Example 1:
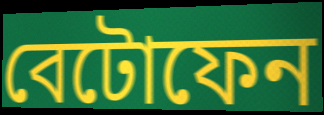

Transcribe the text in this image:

বেটোফেন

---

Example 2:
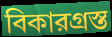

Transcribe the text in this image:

বিকারগ্রস্ত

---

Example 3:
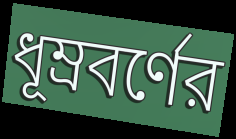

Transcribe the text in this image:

ধূম্রবর্ণের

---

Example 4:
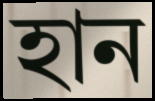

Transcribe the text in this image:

হান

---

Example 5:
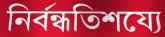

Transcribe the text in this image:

নির্বন্ধতিশয্যে